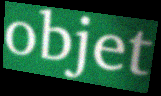
objet